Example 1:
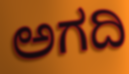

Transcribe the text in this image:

ಅಗದಿ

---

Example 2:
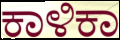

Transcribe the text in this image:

ಕಾಳಿಕಾ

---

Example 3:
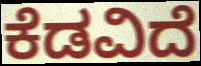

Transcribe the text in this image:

ಕೆಡವಿದೆ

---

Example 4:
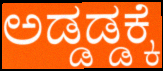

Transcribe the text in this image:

ಅಡ್ಡಡ್ಡಕ್ಕೆ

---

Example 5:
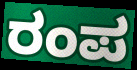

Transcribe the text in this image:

ರಂಪ